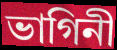
ভাগিনী